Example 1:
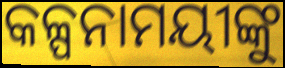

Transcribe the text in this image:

କଳ୍ପନାମୟୀଙ୍କୁ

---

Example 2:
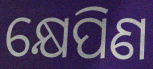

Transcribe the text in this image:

କ୍ଷେପିଣ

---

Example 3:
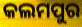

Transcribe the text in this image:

କଲମପୁର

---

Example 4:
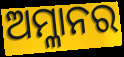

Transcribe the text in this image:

ଅମ୍ଳାନର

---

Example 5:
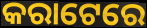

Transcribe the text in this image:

କରାଟେରେ